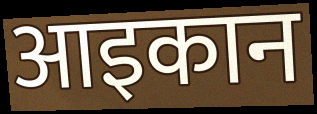
आइकान